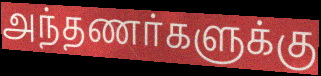
அந்தணர்களுக்கு